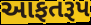
આફતરૂપ